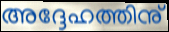
അദ്ദേഹത്തിനു്